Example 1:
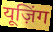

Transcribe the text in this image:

यूज़िंग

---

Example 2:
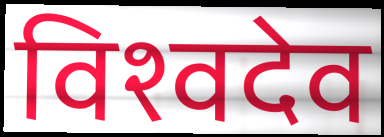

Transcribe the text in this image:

विश्वदेव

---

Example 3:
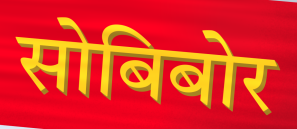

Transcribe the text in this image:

सोबिबोर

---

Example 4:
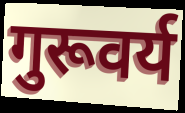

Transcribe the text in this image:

गुरूवर्य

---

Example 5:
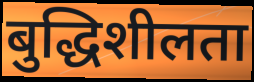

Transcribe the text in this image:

बुद्धिशीलता